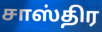
சாஸ்திர